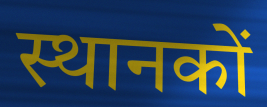
स्थानकों